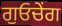
ਗੁਓਚੇਂਗ